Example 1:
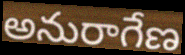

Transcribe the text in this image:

అనురాగేణ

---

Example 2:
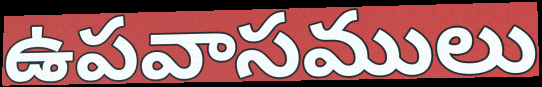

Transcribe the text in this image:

ఉపవాసములు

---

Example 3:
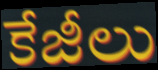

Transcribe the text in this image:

కేజీలు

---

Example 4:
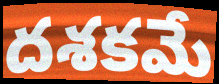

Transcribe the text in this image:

దశకమే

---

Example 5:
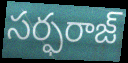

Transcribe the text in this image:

సర్ఫరాజ్